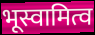
भूस्वामित्व